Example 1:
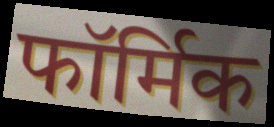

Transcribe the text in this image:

फॉर्मिक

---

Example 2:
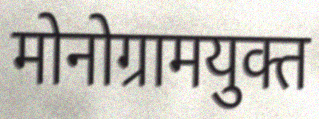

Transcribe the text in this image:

मोनोग्रामयुक्त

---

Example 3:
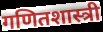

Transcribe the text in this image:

गणितशास्त्री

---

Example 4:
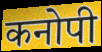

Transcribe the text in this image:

कनोपी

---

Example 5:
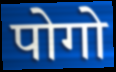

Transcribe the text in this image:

पोगो